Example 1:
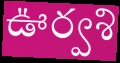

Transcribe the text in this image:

ఊర్వశి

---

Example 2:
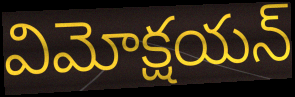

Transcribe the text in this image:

విమోక్షయన్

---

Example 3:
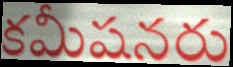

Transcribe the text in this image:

కమీషనరు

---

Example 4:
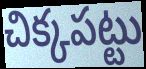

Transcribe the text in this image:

చిక్కపట్టు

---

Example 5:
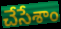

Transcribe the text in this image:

చేసేశాం